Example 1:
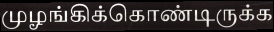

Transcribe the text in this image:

முழங்கிக்கொண்டிருக்க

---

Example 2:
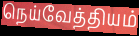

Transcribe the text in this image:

நெய்வேத்தியம்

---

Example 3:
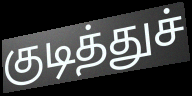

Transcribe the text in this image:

குடித்துச்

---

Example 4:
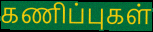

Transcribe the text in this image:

கணிப்புகள்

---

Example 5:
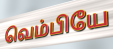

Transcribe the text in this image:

வெம்பியே